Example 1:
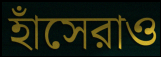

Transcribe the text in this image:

হাঁসেরাও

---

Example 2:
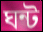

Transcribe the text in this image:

ঘন্ট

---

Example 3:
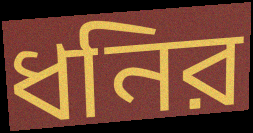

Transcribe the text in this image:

ধনির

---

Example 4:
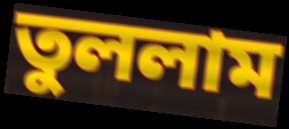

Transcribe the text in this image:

তুললাম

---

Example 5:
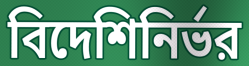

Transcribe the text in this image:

বিদেশিনির্ভর